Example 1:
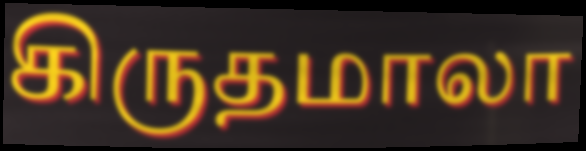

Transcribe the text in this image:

கிருதமாலா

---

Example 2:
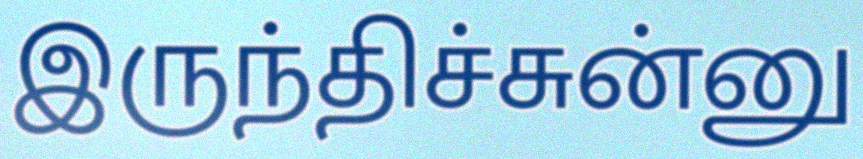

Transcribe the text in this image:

இருந்திச்சுன்னு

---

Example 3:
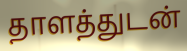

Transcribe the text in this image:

தாளத்துடன்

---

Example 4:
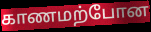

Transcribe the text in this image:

காணமற்போன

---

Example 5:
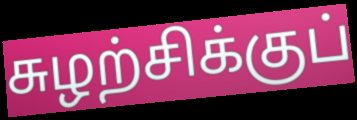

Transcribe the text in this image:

சுழற்சிக்குப்